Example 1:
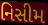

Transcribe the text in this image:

નિસીમ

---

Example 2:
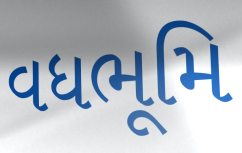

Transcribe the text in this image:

વધભૂમિ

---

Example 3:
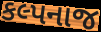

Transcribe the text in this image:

કલ્પનાજ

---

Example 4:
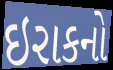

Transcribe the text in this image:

ઇરાકનો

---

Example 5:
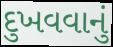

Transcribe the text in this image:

દુખવવાનું